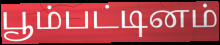
பூம்பட்டினம்